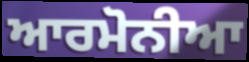
ਆਰਮੋਨੀਆ